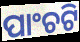
ପାଂଚଟି